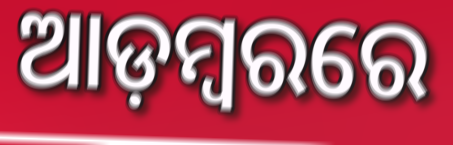
ଆଡ଼ମ୍ୱରରେ